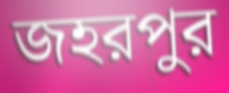
জহরপুর